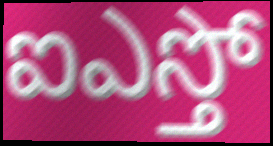
ఐఎస్తో